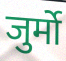
जुर्मो